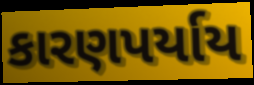
કારણપર્યાય